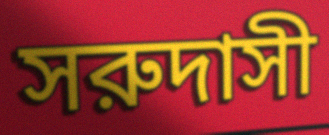
সরুদাসী